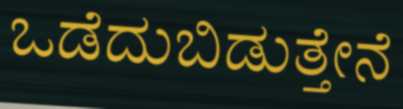
ಒಡೆದುಬಿಡುತ್ತೇನೆ